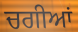
ਚਗੀਆਂ